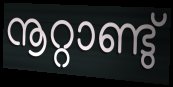
നൂറ്റാണ്ടു്